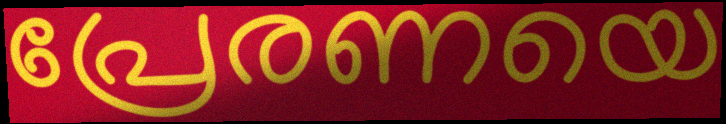
പ്രേരണയെ